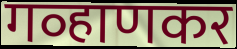
गव्हाणकर